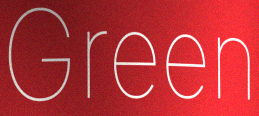
Green